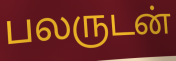
பலருடன்